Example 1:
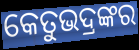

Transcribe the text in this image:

କେତୁଭଦ୍ରଙ୍କର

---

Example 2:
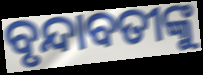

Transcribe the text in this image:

ବୃନ୍ଦାବତୀଙ୍କୁ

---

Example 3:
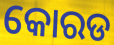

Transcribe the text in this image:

କୋରଡ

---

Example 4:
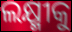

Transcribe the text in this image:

ଲକ୍ଷ୍ମୀକୁ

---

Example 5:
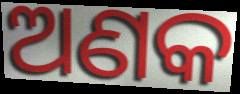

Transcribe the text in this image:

ଅଣକ